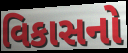
વિકાસનો